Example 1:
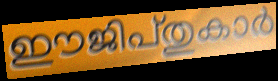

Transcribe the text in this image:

ഈജിപ്തുകാർ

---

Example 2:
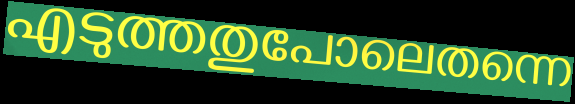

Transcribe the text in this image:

എടുത്തതുപോലെതന്നെ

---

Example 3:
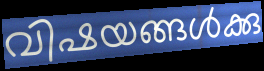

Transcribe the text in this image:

വിഷയങ്ങൾക്കു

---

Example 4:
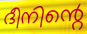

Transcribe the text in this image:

ദീനിന്റെ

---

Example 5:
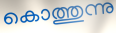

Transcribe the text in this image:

കൊത്തുന്നു